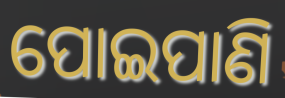
ପୋଇପାଣି